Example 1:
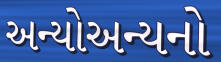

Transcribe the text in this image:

અન્યોઅન્યનો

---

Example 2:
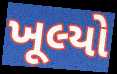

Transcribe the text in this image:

ખૂલ્યો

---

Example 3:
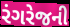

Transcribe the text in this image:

રંગરેજની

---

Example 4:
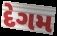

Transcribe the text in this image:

દેગમ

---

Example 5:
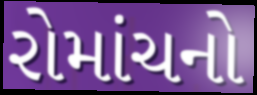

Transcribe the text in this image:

રોમાંચનો